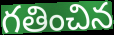
గతించిన